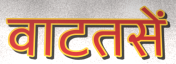
वाटतसें